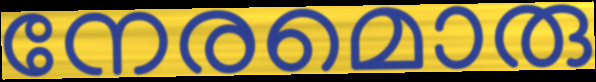
നേരമൊരു